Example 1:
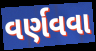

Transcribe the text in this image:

વર્ણવવા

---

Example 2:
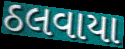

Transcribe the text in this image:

ઠલવાયા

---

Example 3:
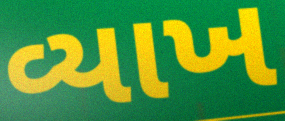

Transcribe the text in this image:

વ્યાખ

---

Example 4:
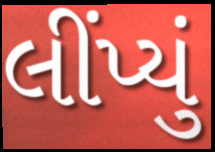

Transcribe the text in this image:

લીંપ્યું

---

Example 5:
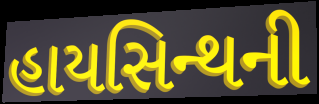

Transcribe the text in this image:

હાયસિન્થની